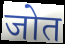
जोत